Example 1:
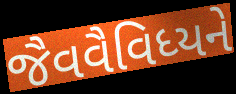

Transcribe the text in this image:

જૈવવૈવિધ્યને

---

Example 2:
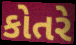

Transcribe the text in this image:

કોતરે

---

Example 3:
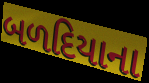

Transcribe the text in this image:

બળદિયાના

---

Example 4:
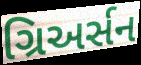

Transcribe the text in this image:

ગ્રિઅર્સન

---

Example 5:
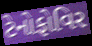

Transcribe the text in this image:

ટેનોફોવિર